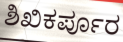
ಶಿಖಿಕರ್ಪೂರ